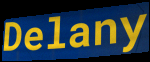
Delany